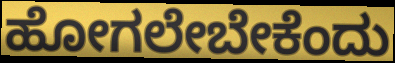
ಹೋಗಲೇಬೇಕೆಂದು